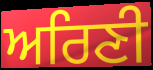
ਅਰਿਣੀ